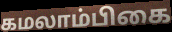
கமலாம்பிகை